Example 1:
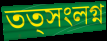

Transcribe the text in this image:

তত্সংলগ্ন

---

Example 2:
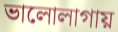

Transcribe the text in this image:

ভালোলাগায়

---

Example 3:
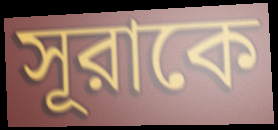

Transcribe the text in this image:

সূরাকে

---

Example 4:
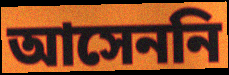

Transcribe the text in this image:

আসেননি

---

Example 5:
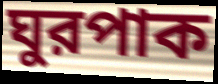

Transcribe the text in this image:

ঘুরপাক